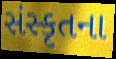
સંસ્‍કૃતના